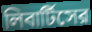
লিবার্টিসের